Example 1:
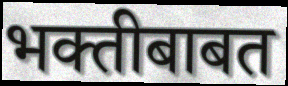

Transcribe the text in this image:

भक्तीबाबत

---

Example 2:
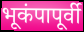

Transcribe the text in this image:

भूकंपापूर्वी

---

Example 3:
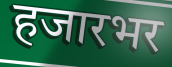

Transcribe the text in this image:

हजारभर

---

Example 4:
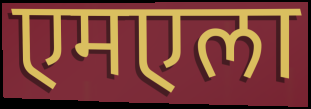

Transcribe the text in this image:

एमएला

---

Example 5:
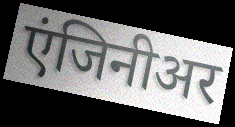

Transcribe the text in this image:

एंजिनीअर